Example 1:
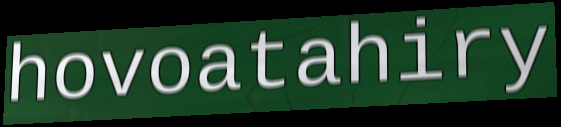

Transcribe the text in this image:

hovoatahiry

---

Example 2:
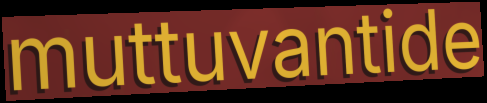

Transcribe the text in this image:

muttuvantide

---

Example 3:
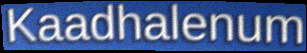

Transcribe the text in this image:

Kaadhalenum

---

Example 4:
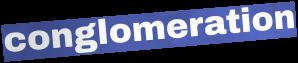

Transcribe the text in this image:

conglomeration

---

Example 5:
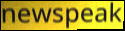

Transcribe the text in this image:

newspeak